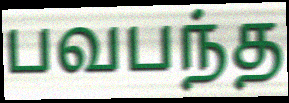
பவபந்த